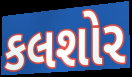
કલશોર